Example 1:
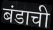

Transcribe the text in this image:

बंडाची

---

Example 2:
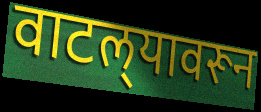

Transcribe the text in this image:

वाटल्यावरून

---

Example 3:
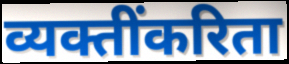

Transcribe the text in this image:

व्यक्तींकरिता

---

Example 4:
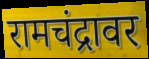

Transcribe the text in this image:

रामचंद्रावर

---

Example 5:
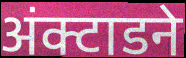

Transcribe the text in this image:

अंक्टाडने